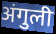
अंगुली